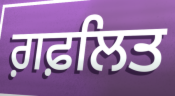
ਗ਼ਫ਼ਲਿਤ